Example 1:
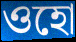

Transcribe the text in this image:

ওহো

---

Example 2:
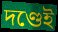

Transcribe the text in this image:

দণ্ডেই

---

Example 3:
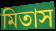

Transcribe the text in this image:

মিতাস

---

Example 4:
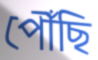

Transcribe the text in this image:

পৌঁছি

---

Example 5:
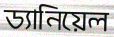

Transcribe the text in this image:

ড্যানিয়েল